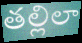
తల్లిలా